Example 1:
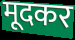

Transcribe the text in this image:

मूदकर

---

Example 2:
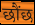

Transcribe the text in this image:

छौंछ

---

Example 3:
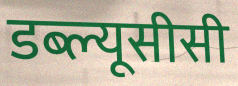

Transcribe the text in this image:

डब्ल्यूसीसी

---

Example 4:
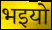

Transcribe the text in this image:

भइयो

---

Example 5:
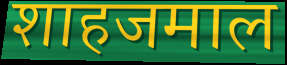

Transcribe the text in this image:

शाहजमाल